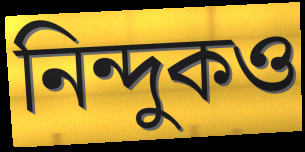
নিন্দুকও